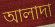
আলাদা